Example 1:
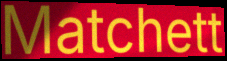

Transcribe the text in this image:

Matchett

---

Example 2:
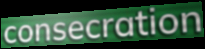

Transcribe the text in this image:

consecration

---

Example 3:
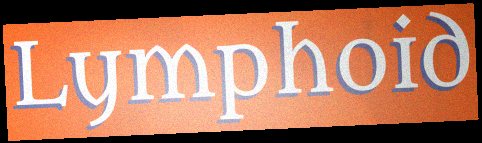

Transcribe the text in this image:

Lymphoid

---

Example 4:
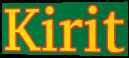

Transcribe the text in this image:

Kirit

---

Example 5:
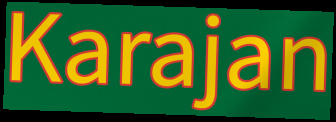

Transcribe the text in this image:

Karajan